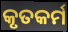
କୃତକର୍ମ